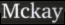
Mckay